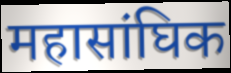
महासांघिक